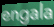
engala